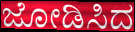
ಜೋಡಿಸಿದ